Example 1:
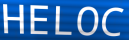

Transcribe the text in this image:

HELOC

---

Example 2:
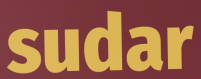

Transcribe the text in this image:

sudar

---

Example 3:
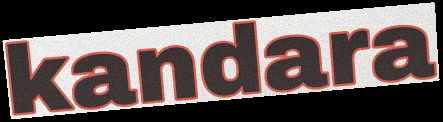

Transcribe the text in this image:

kandara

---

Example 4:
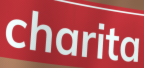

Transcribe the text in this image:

charita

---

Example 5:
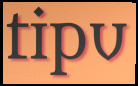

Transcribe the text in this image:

tipu